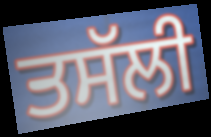
ਤਸੱਲੀ